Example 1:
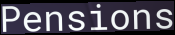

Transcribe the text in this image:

Pensions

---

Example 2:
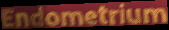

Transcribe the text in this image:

Endometrium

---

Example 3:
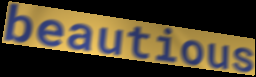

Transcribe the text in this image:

beautious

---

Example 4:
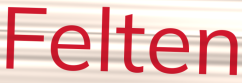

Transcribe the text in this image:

Felten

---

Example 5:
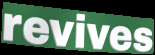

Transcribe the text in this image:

revives